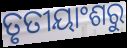
ତୃତୀୟାଂଶରୁ